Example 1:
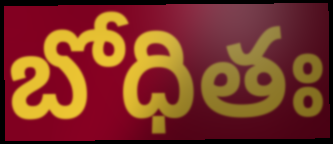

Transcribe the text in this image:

బోధితః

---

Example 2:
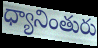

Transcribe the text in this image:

ధ్యానింతురు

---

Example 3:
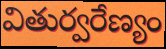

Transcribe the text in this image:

వితుర్వరేణ్యం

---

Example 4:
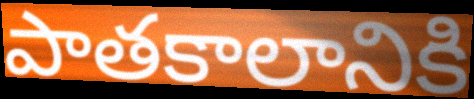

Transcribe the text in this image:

పాతకాలానికి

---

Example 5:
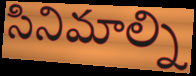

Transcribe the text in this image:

సినిమాల్ని